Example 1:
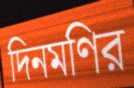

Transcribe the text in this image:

দিনমণির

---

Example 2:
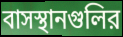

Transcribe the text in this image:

বাসস্থানগুলির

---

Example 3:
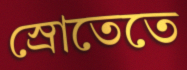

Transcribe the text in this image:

স্রোতেতে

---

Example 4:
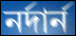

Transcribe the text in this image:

নর্দার্ন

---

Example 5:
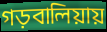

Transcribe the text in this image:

গড়বালিয়ায়